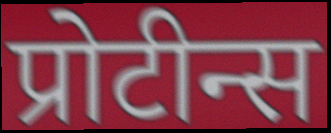
प्रोटीन्स